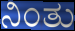
ನಿಂತು